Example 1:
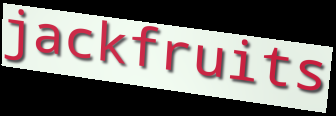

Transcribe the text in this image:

jackfruits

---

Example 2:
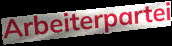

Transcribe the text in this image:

Arbeiterpartei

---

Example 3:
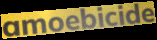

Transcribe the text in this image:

amoebicide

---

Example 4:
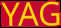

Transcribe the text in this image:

YAG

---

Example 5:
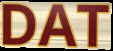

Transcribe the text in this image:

DAT